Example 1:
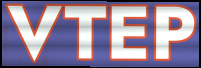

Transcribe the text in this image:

VTEP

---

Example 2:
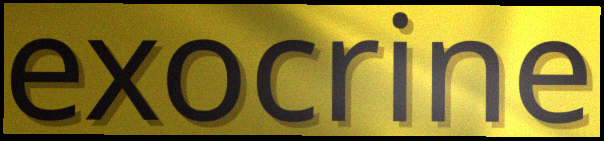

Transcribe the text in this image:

exocrine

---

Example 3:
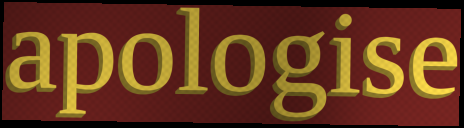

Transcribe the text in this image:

apologise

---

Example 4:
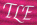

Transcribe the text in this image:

TLE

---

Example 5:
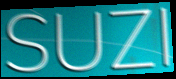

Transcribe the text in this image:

SUZI